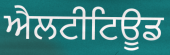
ਐਲਟੀਟਿਊਡ